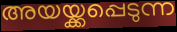
അയയ്ക്കപ്പെടുന്ന